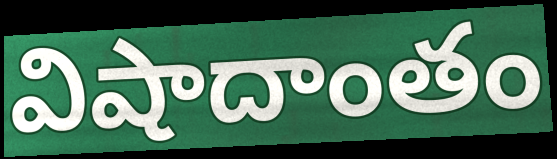
విషాదాంతం